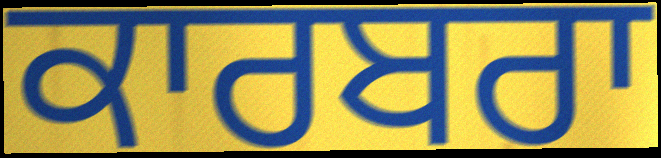
ਕਾਰਬਰਾ